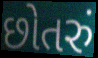
છોતરું